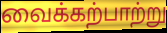
வைக்கற்பாற்று